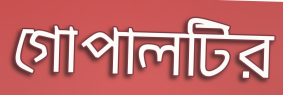
গোপালটির